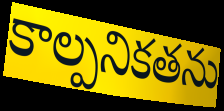
కాల్పనికతను